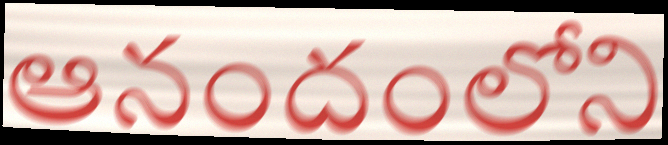
ఆనందంలోని